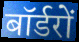
बॉर्डरों